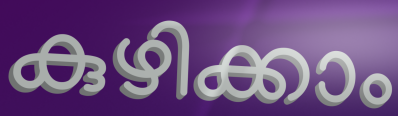
കുഴിക്കാം